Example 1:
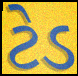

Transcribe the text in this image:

ટેડ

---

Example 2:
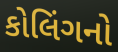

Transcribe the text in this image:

કોલિંગનો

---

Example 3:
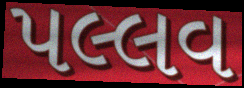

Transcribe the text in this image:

પલ્લવ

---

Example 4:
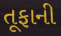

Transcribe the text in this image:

તૂફાની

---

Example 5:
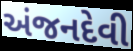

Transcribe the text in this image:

અંજનદેવી